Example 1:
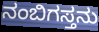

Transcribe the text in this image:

ನಂಬಿಗಸ್ತನು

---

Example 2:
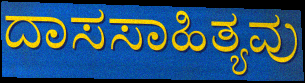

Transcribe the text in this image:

ದಾಸಸಾಹಿತ್ಯವು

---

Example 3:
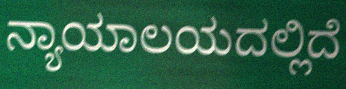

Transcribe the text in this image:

ನ್ಯಾಯಾಲಯದಲ್ಲಿದೆ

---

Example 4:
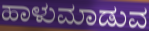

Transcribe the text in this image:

ಹಾಳುಮಾಡುವ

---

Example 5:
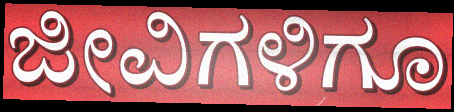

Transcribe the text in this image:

ಜೀವಿಗಳಿಗೂ